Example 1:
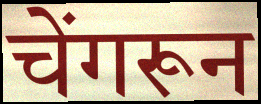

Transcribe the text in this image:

चेंगरून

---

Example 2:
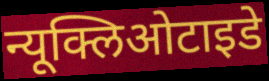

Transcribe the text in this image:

न्यूक्लिओटाइडे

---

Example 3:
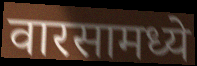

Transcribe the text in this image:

वारसामध्ये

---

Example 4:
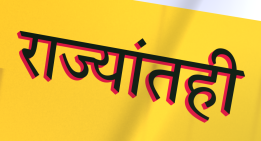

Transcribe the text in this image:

राज्यांतही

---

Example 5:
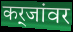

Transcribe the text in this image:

कर्जांवर